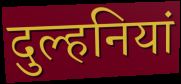
दुल्हनियां